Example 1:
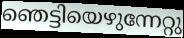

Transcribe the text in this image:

ഞെട്ടിയെഴുന്നേറ്റു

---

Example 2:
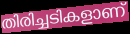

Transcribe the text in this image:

തിരിച്ചടികളാണ്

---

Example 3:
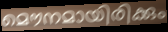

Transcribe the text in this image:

മൌനമായിരിക്കും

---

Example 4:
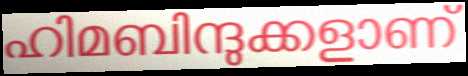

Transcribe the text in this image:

ഹിമബിന്ദുക്കളാണ്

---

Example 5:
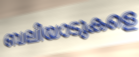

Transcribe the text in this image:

ബലിയാടുകളെ